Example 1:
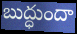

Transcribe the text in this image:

బుద్ధుందా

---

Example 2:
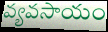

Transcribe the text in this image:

వ్యవసాయం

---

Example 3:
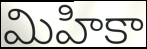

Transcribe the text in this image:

మిహికా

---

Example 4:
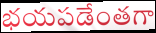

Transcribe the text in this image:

భయపడేంతగా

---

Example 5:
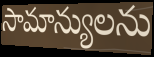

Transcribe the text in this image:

సామాన్యులను